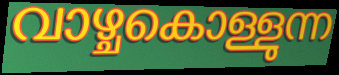
വാഴ്ചകൊള്ളുന്ന